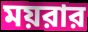
ময়রার